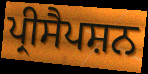
ਪ੍ਰੀਸੈਪਸ਼ਨ